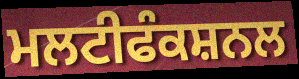
ਮਲਟੀਫੰਕਸ਼ਨਲ